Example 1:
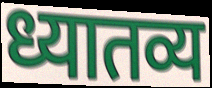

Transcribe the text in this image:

ध्यातव्य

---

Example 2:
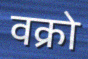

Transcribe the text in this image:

वक्रो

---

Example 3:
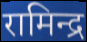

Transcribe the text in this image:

रामिन्द्र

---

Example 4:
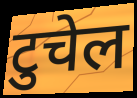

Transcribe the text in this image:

टुचेल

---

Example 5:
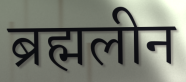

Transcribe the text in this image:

ब्रह्मलीन